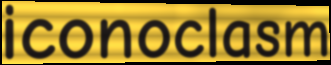
iconoclasm